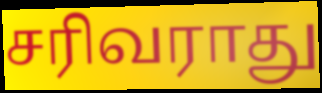
சரிவராது